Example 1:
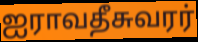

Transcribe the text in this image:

ஐராவதீசுவரர்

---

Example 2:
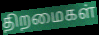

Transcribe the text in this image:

திறமைகள்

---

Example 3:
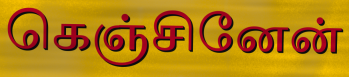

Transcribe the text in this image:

கெஞ்சினேன்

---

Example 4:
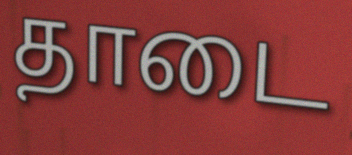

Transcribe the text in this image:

தாடை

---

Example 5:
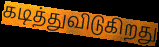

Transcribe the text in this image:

கடித்துவிடுகிறது